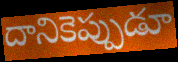
దానికెప్పుడూ